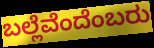
ಬಲ್ಲೆವೆಂದೆಂಬರು